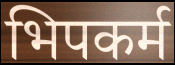
भिपकर्म